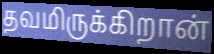
தவமிருக்கிறான்